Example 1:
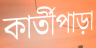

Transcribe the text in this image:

কার্তীপাড়া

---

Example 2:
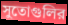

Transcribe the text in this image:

সুতোগুলির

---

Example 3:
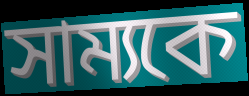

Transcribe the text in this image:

সাম্যকে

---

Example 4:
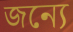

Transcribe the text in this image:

জন্যে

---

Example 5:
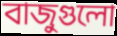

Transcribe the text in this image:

বাজুগুলো